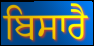
ਬਿਸਾਰੈ